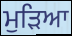
ਮੁੜਿਆ